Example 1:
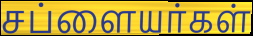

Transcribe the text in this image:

சப்ளையர்கள்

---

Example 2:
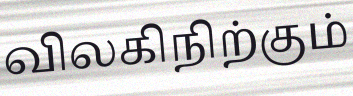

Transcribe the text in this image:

விலகிநிற்கும்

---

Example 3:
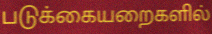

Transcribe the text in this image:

படுக்கையறைகளில்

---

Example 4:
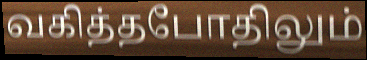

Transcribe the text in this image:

வகித்தபோதிலும்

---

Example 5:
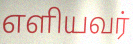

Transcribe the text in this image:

எளியவர்